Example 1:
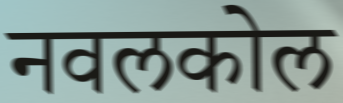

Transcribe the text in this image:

नवलकोल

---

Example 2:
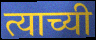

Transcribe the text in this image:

त्याच्यी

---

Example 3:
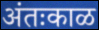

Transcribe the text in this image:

अंतःकाळ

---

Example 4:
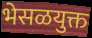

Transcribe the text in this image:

भेसळयुक्त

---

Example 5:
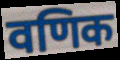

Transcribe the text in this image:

वणिक